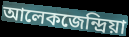
আলেকজেন্দ্ৰিয়া